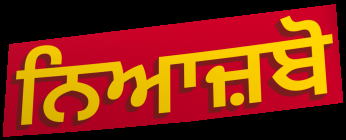
ਨਿਆਜ਼ਬੋ